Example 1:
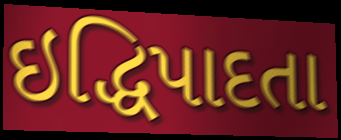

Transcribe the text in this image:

ઇદ્ધિપાદતા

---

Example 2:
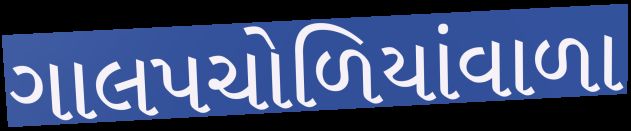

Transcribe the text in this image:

ગાલપચોળિયાંવાળા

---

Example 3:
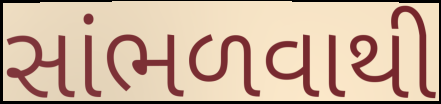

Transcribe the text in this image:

સાંભળવાથી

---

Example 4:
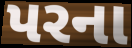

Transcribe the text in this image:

પરના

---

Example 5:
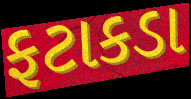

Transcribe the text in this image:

ફટાકડા